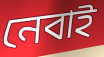
নেবাই